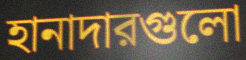
হানাদারগুলো